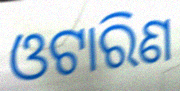
ଓଟାରିଣ